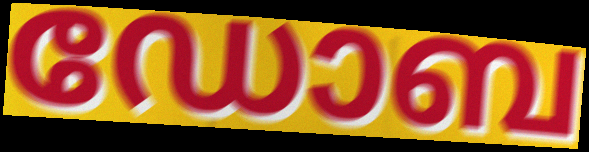
ഡോബ